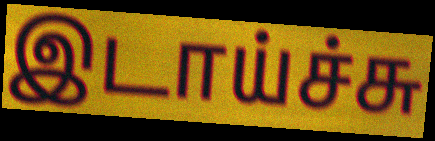
இடாய்ச்சு